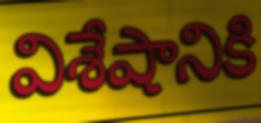
విశేషానికి